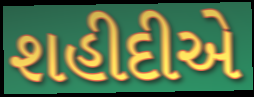
શહીદીએ